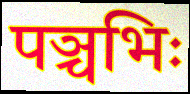
पञ्चभिः